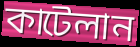
কাটেলান